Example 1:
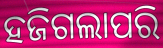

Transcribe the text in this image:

ହଜିଗଲାପରି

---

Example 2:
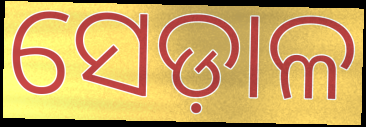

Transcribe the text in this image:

ସେଡ଼ାଳ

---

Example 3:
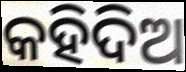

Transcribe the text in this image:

କହିଦିଅ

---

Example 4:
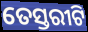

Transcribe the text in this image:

ତେସ୍ତରୀଟି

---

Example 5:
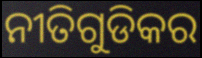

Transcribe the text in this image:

ନୀତିଗୁଡିକର